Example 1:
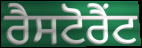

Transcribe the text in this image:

ਰੈਸਟੋਰੈਂਟ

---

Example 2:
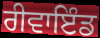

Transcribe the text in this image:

ਰੀਵਾਇੰਡ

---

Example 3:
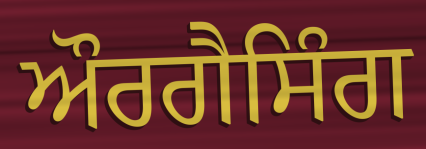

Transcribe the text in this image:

ਔਰਗੈਸਿੰਗ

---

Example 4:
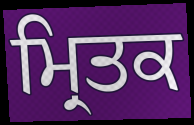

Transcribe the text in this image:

ਮ੍ਰਿਤਕ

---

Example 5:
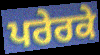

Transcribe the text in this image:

ਪਰੇਰਕੇ